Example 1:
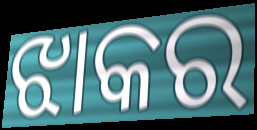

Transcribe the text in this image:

ଝାକର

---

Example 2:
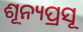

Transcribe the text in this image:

ଶୂନ୍ୟପ୍ରସୂ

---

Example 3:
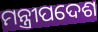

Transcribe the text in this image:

ମନ୍ତ୍ରୀପଦେଶ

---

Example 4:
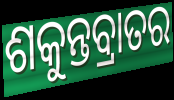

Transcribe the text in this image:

ଶକୁନ୍ତବ୍ରାତର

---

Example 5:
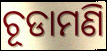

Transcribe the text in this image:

ଚୂଡାମଣି